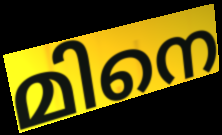
മിനെ